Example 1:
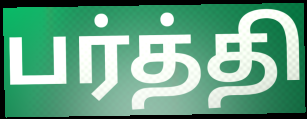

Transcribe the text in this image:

பர்த்தி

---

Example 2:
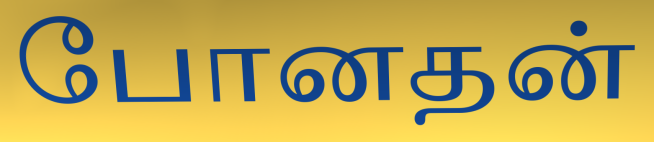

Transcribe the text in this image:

போனதன்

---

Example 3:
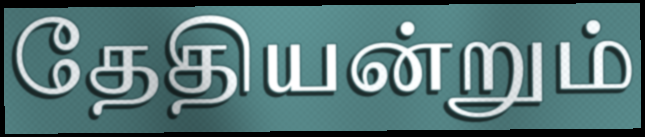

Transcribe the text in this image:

தேதியன்றும்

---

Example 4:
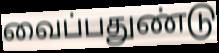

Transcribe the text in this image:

வைப்பதுண்டு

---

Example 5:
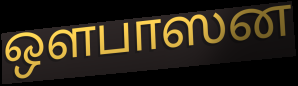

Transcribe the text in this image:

ஒளபாஸன